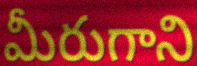
మీరుగాని